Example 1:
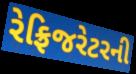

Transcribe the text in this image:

રેફ્રિજરેટરની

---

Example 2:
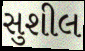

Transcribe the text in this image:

સુશીલ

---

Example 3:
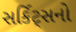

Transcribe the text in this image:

સર્કિટ્સનો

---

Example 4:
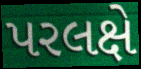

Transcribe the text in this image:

પરલક્ષે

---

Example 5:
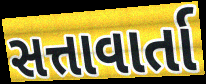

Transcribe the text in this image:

સત્તાવાર્તા